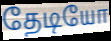
தேடியோ